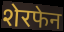
शेरफेन